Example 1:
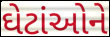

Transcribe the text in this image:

ઘેટાંઓને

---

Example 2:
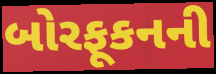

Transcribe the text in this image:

બોરફૂકનની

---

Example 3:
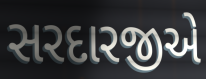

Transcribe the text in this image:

સરદારજીએ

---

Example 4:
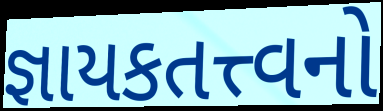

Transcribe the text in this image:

જ્ઞાયકતત્ત્વનો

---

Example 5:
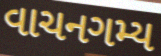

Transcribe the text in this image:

વાચનગમ્ય